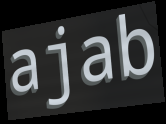
ajab